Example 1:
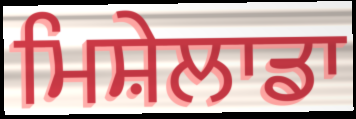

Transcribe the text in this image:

ਮਿਸ਼ੇਲਾਡਾ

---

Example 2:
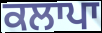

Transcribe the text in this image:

ਕਲਾਪਾ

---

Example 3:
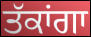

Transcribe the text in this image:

ਤੱਕਾਂਗਾ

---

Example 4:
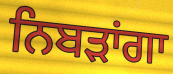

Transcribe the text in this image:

ਨਿਬੜਾਂਗਾ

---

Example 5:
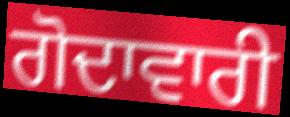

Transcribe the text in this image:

ਗੋਦਾਵਾਰੀ